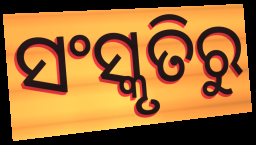
ସଂସ୍କୃତିରୁ